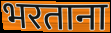
भरताना